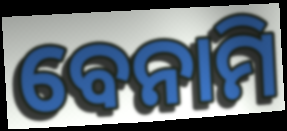
ବେନାମି